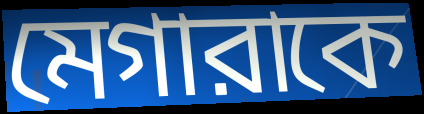
মেগারাকে